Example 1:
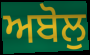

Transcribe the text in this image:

ਅਬੋਲੁ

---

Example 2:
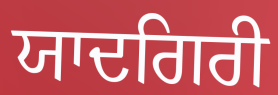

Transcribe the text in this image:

ਯਾਦਗਿਰੀ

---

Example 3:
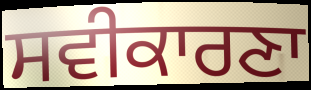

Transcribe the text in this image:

ਸਵੀਕਾਰਣਾ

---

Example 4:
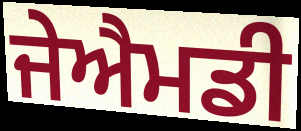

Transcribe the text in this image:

ਜੇਐਮਡੀ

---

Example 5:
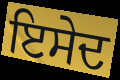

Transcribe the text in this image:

ਇਸੇਦ